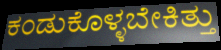
ಕಂಡುಕೊಳ್ಳಬೇಕಿತ್ತು